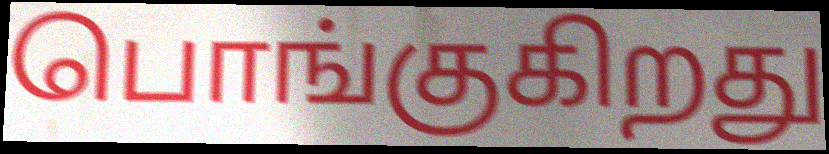
பொங்குகிறது